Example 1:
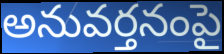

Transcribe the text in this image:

అనువర్తనంపై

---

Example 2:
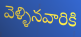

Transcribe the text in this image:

వెళ్ళినవారికి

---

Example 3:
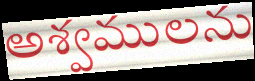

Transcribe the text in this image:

అశ్వములను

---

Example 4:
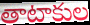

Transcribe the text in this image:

తాటాకుల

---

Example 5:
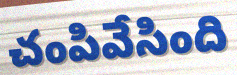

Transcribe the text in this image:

చంపివేసింది